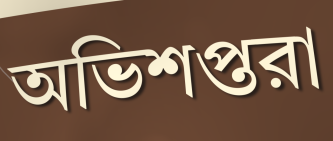
অভিশপ্তরা